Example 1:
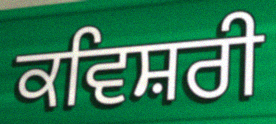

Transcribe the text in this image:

ਕਵਿਸ਼ਰੀ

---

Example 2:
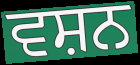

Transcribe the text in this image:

ਵਸ਼ਨ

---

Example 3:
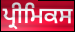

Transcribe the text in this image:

ਪ੍ਰੀਮਿਕਸ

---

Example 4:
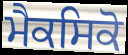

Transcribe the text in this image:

ਮੈਕਸਿਕੋ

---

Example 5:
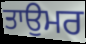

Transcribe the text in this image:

ਤਾਉਮਰ